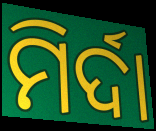
ମିର୍ଦା